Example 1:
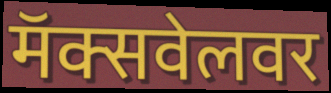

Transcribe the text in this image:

मॅक्सवेलवर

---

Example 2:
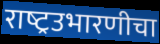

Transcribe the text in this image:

राष्ट्रउभारणीचा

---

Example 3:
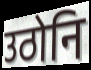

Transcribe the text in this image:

उठोनि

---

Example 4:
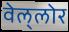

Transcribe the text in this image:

वेल्लोर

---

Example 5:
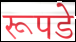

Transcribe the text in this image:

रूपडे